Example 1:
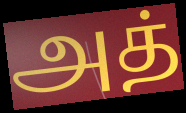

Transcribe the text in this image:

அத்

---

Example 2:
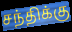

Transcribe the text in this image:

சந்திக்கு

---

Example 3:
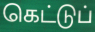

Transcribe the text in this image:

கெட்டுப்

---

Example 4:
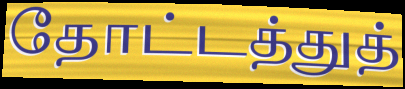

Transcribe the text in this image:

தோட்டத்துத்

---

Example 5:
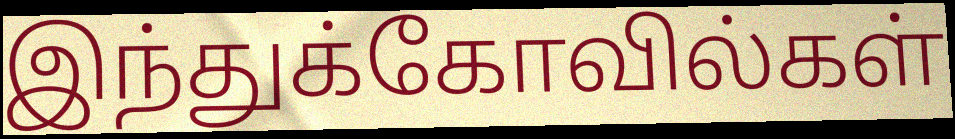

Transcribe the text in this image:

இந்துக்கோவில்கள்